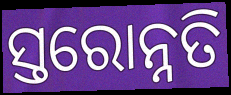
ସ୍ତରୋନ୍ନତି